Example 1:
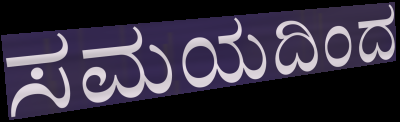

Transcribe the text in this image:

ಸಮಯದಿಂದ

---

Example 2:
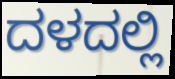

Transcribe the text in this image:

ದಳದಲ್ಲಿ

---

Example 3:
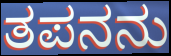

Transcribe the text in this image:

ತಪನನು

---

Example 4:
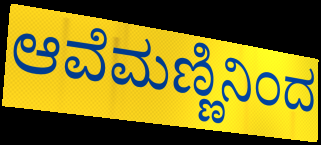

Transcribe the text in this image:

ಆವೆಮಣ್ಣಿನಿಂದ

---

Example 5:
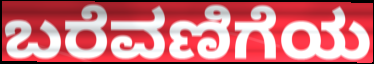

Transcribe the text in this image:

ಬರೆವಣಿಗೆಯ